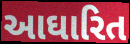
આઘારિત